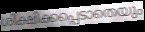
ശിക്ഷിക്കപ്പെടാതെയും